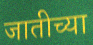
जातीच्या